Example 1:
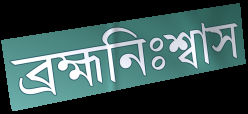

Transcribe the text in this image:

ব্রহ্মনিঃশ্বাস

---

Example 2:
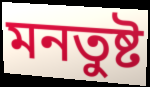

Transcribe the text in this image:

মনতুষ্ট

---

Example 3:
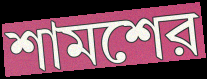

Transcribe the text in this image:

শামশের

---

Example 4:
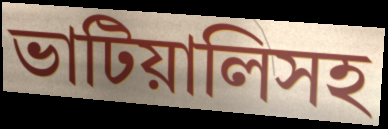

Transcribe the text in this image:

ভাটিয়ালিসহ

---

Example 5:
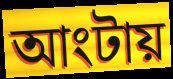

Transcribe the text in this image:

আংটায়